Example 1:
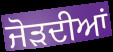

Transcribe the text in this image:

ਜੋੜਦੀਆਂ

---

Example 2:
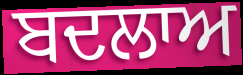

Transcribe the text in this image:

ਬਦਲਾਅ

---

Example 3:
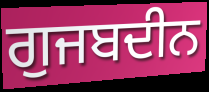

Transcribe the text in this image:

ਗੁਜਬਦੀਨ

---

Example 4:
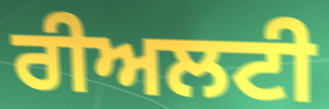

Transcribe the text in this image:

ਰੀਅਲਟੀ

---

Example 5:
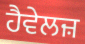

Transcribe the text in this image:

ਹੈਵੇਲਜ਼